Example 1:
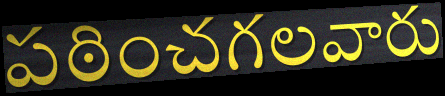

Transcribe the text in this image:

పఠించగలవారు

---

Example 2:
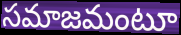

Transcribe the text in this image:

సమాజమంటూ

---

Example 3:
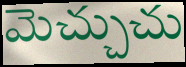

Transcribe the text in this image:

మెచ్చుచు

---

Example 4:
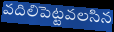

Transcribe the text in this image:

వదిలిపెట్టవలసిన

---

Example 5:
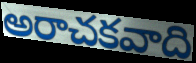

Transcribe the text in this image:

అరాచకవాది